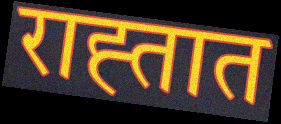
राह्तात